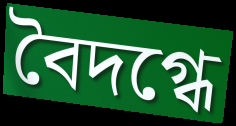
বৈদগ্ধে